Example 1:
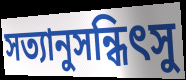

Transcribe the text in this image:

সত্যানুসন্ধিৎসু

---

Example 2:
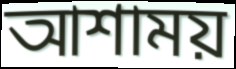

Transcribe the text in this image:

আশাময়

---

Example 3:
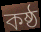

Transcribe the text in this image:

কষ্ঠ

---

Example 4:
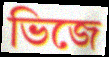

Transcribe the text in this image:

ভিজে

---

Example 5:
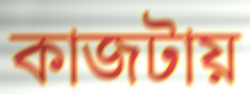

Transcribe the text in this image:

কাজটায়